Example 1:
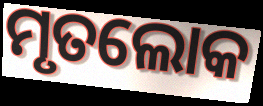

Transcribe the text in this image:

ମୃତଲୋକ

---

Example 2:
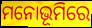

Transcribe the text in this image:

ମନୋଭୂମିରେ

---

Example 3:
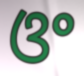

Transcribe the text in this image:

ଓଂ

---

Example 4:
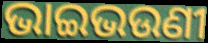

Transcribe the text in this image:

ଭାଇଭଉଣୀ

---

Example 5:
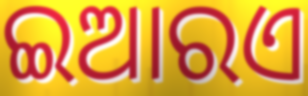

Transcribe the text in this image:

ଇଆରଏ